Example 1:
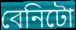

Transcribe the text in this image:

বেনিটো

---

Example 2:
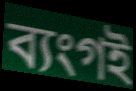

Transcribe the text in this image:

ব্যংগই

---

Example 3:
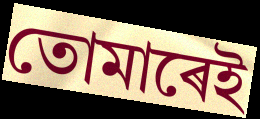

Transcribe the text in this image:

তোমাৰেই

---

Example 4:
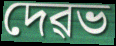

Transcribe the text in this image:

দেৱভ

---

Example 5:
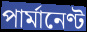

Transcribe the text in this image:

পাৰ্মানেণ্ট